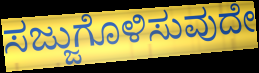
ಸಜ್ಜುಗೊಳಿಸುವುದೇ